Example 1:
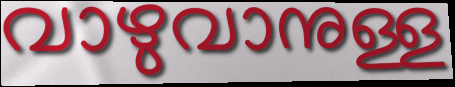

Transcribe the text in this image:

വാഴുവാനുള്ള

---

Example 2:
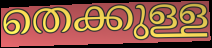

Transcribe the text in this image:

തെക്കുള്ള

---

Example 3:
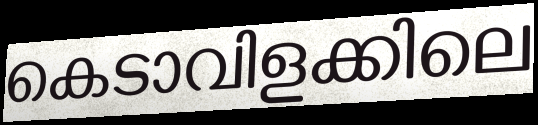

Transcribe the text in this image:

കെടാവിളക്കിലെ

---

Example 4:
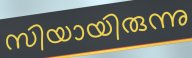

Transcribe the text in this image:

സിയായിരുന്നു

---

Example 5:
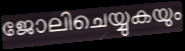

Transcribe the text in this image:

ജോലിചെയ്യുകയും